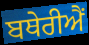
ਬਥੇਰੀਐਂ